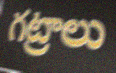
గట్రాలు